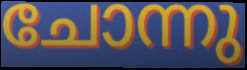
ചോന്നു